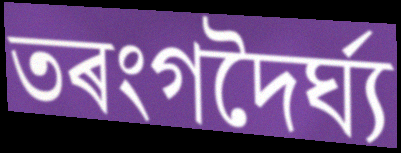
তৰংগদৈৰ্ঘ্য